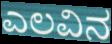
ಎಲವಿನ